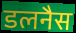
डलनैस